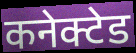
कनेक्टेड